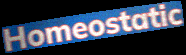
Homeostatic